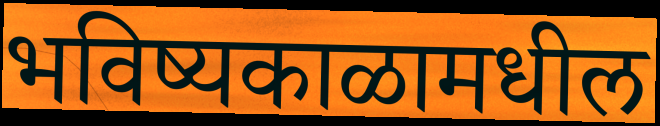
भविष्यकाळामधील